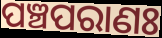
ପଞ୍ଚପରାଣଃ